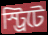
স্ট্রিটে